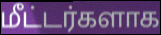
மீட்டர்களாக